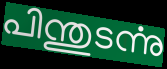
പിന്തുടൎന്നു